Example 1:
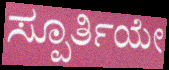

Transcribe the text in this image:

ಸ್ಪೂರ್ತಿಯೇ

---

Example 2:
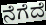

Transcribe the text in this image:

ನೆಗೆದೆ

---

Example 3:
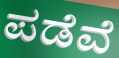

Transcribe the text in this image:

ಪಡೆವೆ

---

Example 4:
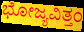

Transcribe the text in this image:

ಭೋಜ್ಯವಿತ್ತಂ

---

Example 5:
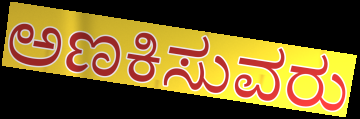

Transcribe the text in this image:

ಅಣಕಿಸುವರು